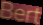
Bert